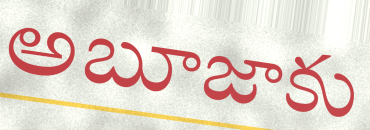
అబూజాకు